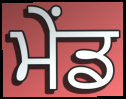
ਮੇਂਡ